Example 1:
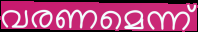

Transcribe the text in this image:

വരണമെന്ന്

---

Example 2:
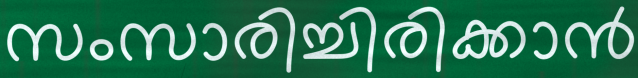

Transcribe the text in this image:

സംസാരിച്ചിരിക്കാൻ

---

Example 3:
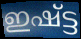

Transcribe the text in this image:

ഇഷ്ട്ട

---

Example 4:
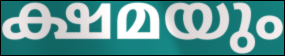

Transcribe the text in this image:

ക്ഷമയും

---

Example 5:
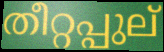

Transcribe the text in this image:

തീറ്റപ്പുല്